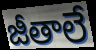
జీతాలే